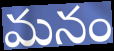
మనం